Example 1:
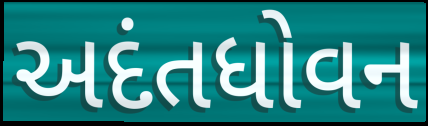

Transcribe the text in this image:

અદંતધોવન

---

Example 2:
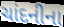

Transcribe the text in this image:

ચાંદનીના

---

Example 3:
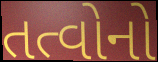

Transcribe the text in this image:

તત્વોનો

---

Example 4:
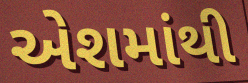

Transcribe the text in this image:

એશમાંથી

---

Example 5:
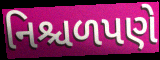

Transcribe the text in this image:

નિશ્ચળપણે